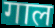
गाल